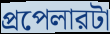
প্রপেলারটা